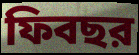
ফিবছর